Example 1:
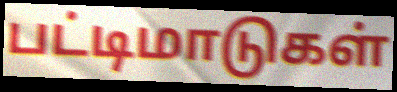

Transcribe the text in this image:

பட்டிமாடுகள்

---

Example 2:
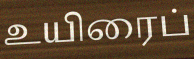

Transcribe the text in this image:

உயிரைப்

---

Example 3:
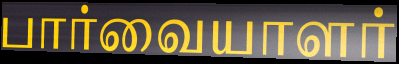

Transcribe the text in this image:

பார்வையாளர்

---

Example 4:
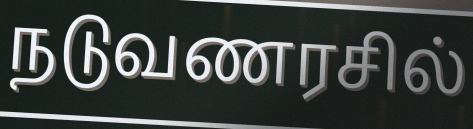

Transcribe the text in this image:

நடுவணரசில்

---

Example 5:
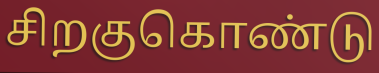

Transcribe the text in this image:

சிறகுகொண்டு